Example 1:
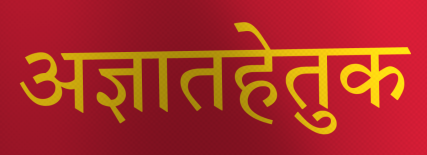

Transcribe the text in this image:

अज्ञातहेतुक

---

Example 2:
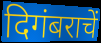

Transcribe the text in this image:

दिगंबराचें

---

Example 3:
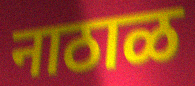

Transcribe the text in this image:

नाठाळ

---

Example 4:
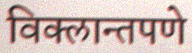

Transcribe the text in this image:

विक्लान्तपणे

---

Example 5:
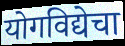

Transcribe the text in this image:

योगविद्येचा